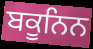
ਬਕੂਨਿਨ